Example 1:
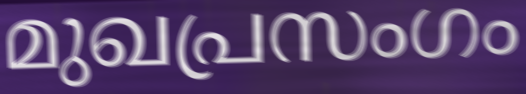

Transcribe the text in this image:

മുഖപ്രസംഗം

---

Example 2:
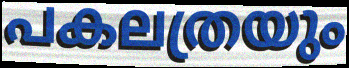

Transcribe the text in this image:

പകലത്രയും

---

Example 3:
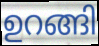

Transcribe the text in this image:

ഉറങ്ങി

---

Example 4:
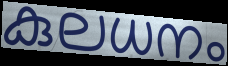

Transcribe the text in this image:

കുലധനം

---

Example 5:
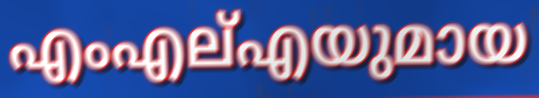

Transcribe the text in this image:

എംഎല്എയുമായ